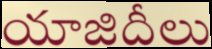
యాజిదీలు